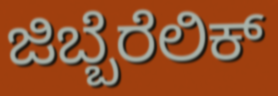
ಜಿಬ್ಬೆರೆಲಿಕ್